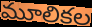
మూలికల